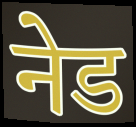
नेड